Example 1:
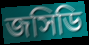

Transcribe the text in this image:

জসিডি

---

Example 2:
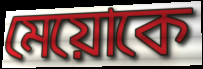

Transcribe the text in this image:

মেয়োকে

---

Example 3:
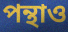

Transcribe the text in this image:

পন্থাও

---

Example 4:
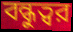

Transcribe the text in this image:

বন্ধুত্বর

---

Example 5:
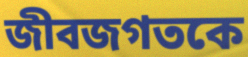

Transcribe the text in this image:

জীবজগতকে